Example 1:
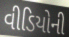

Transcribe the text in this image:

વીડિયોની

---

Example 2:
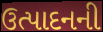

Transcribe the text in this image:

ઉત્પાદનની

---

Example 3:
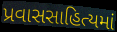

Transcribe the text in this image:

પ્રવાસસાહિત્યમાં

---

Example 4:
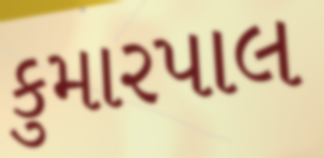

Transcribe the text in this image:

કુમારપાલ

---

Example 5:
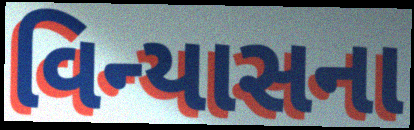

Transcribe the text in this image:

વિન્યાસના